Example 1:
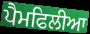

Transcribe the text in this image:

ਪੈਮਫਿਲੀਆ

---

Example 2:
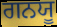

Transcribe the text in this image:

ਗਨਯੂ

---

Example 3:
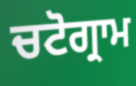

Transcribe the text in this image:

ਚਟੋਗ੍ਰਾਮ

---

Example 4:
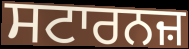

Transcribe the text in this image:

ਸਟਾਰਨਜ਼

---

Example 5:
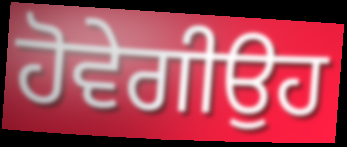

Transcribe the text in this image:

ਹੋਵੇਗੀਉਹ